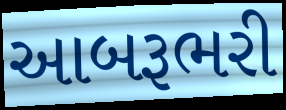
આબરૂભરી